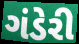
ગંડેરી